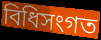
বিধিসংগত